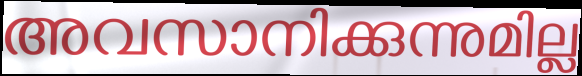
അവസാനിക്കുന്നുമില്ല